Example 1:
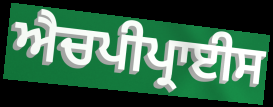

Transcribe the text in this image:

ਐਚਪੀਪ੍ਰਾਈਸ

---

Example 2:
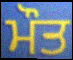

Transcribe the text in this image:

ਮੌਤ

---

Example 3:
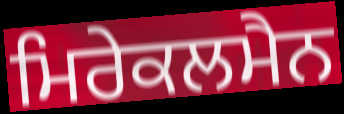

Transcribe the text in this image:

ਮਿਰੇਕਲਮੈਨ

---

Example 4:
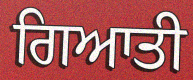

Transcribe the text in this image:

ਗਿਆਤੀ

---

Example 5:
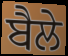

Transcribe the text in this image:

ਬੈਲੇ